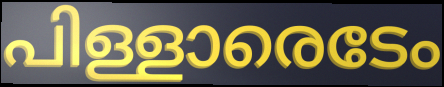
പിള്ളാരെടേം